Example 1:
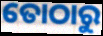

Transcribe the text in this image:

ତୋଠାରୁ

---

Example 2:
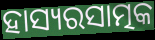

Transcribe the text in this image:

ହାସ୍ୟରସାତ୍ମକ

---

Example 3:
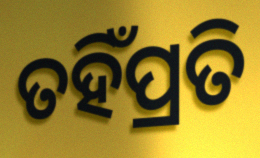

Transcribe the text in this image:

ତହିଁପ୍ରତି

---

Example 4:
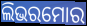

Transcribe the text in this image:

ଲିଭରମୋର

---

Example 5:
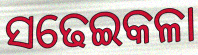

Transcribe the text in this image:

ସଢେଇକଳା